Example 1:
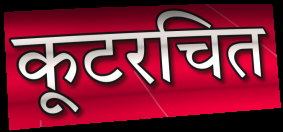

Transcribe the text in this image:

कूटरचित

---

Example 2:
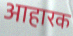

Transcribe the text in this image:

आहारक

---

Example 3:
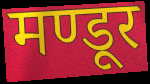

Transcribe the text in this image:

मण्डूर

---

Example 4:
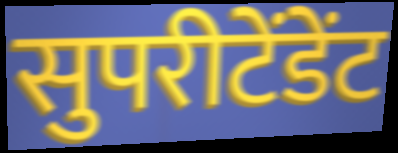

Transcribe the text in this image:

सुपरीटेंडेंट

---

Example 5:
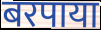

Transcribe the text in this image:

बरपाया